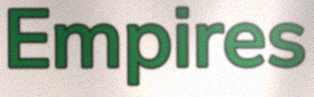
Empires